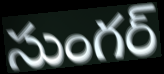
సుంగర్